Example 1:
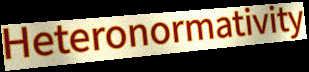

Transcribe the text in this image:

Heteronormativity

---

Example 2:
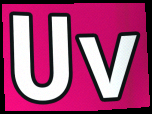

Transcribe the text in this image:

Uv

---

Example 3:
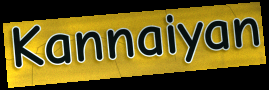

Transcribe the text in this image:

Kannaiyan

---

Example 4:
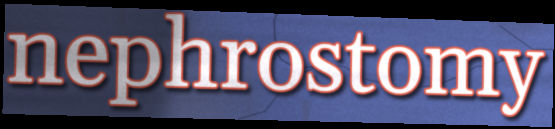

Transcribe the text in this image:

nephrostomy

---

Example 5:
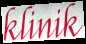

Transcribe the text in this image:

klinik